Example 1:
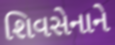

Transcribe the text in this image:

શિવસેનાને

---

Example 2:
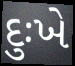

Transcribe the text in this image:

દુઃખે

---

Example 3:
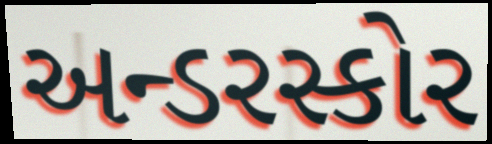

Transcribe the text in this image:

અન્ડરસ્કોર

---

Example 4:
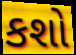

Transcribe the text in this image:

કશો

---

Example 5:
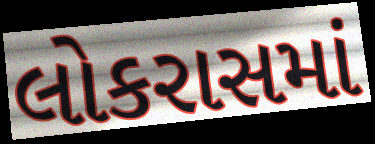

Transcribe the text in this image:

લોકરાસમાં